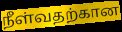
நீள்வதற்கான